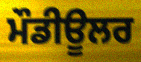
ਮੌਡੀਊਲਰ